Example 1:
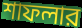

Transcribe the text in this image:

শাফলার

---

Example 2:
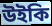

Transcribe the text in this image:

উইকি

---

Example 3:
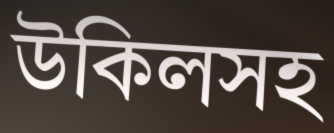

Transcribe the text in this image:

উকিলসহ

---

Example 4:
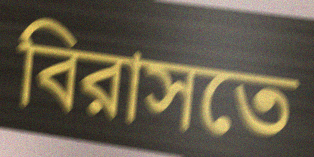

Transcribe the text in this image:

বিরাসতে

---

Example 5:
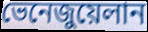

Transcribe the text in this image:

ভেনেজুয়েলান